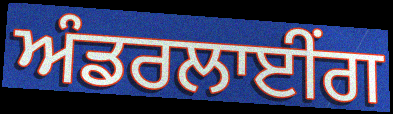
ਅੰਡਰਲਾਈੰਗ